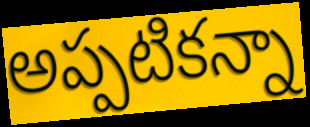
అప్పటికన్నా